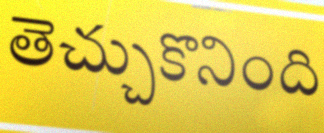
తెచ్చుకొనింది